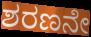
ಶರಣನೇ